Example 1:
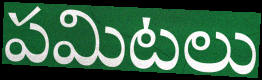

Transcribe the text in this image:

పమిటలు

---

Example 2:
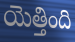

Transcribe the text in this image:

యెత్తింది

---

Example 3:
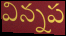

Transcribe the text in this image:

విన్నప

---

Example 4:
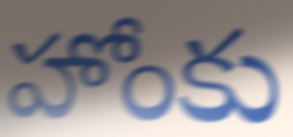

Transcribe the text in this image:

హోంకు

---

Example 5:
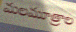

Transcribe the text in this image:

మలమూత్రాల